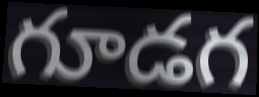
గూడగ